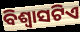
ବିଶ୍ଵାସଟିଏ